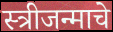
स्त्रीजन्माचे